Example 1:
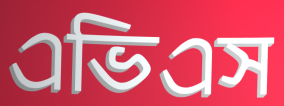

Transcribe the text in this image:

এভিএস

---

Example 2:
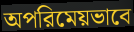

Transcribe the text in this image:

অপরিমেয়ভাবে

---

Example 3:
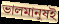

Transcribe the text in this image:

ভালমানুষই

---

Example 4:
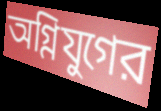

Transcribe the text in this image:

অগ্নিযুগের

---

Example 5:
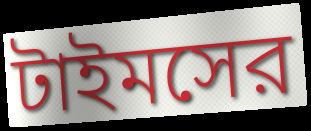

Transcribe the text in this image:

টাইমসের